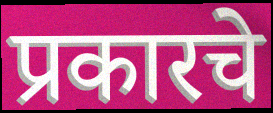
प्रकारचे